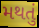
મથતું